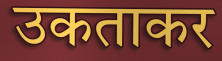
उकताकर